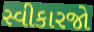
સ્વીકારજો